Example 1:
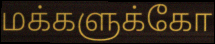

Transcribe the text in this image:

மக்களுக்கோ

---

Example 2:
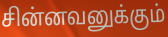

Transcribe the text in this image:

சின்னவனுக்கும்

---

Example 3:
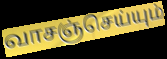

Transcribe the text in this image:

வாசஞ்செய்யும்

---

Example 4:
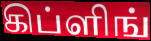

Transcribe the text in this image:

கிப்ளிங்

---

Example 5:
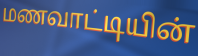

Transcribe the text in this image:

மணவாட்டியின்